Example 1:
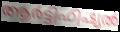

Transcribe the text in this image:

ആർട്ടിഫിഷ്യൽ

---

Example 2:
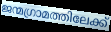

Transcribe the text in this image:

ജന്മഗ്രാമത്തിലേക്ക്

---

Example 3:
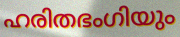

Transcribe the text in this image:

ഹരിതഭംഗിയും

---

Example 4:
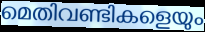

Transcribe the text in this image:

മെതിവണ്ടികളെയും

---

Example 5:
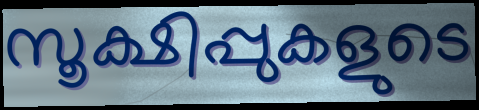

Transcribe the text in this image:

സൂക്ഷിപ്പുകളുടെ